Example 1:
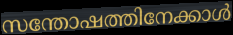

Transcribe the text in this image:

സന്തോഷത്തിനേക്കാൾ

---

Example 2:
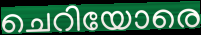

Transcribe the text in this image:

ചെറിയോരെ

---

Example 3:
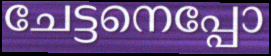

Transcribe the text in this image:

ചേട്ടനെപ്പോ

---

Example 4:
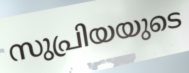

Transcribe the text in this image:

സുപ്രിയയുടെ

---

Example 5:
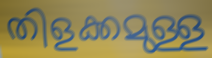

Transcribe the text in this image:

തിളക്കമുള്ള